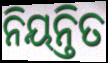
ନିୟନ୍ତିତ